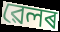
ৱেলৰ